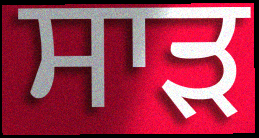
ਸਾਡ਼